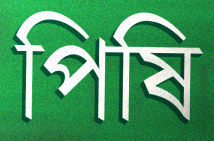
পিষি